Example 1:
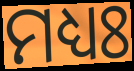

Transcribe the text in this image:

ମଧ୍ୟଃ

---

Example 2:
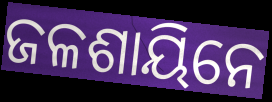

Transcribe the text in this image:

ଜଳଶାୟିନେ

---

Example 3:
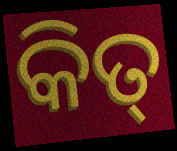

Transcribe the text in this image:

କିତ୍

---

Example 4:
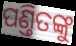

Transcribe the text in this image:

ପଣ୍ତିତଙ୍କୁ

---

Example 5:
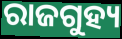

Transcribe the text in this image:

ରାଜଗୁହ୍ୟ